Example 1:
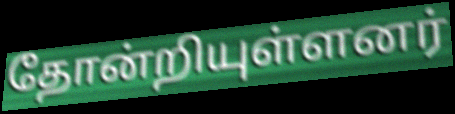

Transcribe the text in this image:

தோன்றியுள்ளனர்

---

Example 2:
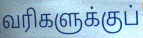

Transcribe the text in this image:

வரிகளுக்குப்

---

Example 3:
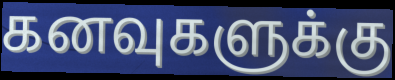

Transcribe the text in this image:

கனவுகளுக்கு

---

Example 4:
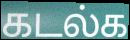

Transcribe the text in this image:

கடல்க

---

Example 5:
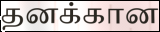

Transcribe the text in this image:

தனக்கான